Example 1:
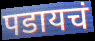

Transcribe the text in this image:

पडायचं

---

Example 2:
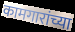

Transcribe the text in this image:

कामगारांच्या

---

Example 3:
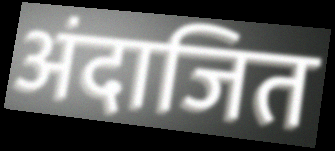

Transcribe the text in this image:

अंदाजित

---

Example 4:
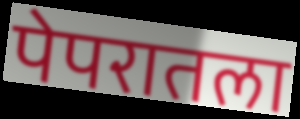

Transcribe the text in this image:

पेपरातला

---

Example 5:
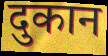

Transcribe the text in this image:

दुकान